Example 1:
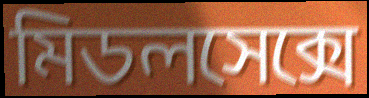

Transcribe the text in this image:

মিডলসেক্সে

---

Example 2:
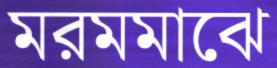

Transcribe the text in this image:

মরমমাঝে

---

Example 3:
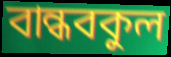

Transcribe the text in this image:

বান্ধবকুল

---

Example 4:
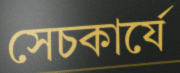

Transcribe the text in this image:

সেচকার্যে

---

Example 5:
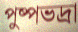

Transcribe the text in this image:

পুষ্পভদ্রা